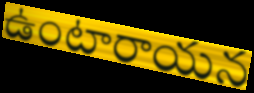
ఉంటారాయన